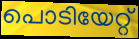
പൊടിയേറ്റ്